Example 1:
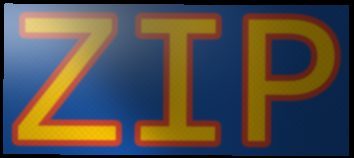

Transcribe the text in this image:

ZIP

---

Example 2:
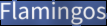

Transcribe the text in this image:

Flamingos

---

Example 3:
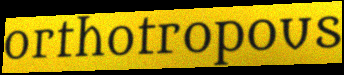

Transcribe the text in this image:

orthotropous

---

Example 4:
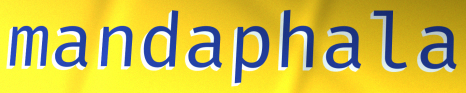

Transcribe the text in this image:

mandaphala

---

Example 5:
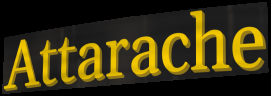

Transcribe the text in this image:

Attarache